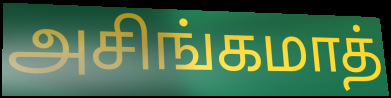
அசிங்கமாத்